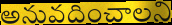
అనువదించాలని